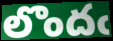
లొందఁ